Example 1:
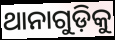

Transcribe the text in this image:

ଥାନାଗୁଡ଼ିକୁ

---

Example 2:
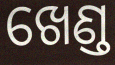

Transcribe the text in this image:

ଖେଣ୍ଡ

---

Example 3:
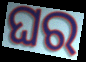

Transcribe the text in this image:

ଘର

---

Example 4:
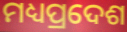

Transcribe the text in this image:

ମଧ୍ୟପ୍ରଦେଶ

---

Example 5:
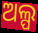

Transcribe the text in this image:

ଅଲ୍ପ